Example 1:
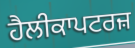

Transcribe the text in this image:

ਹੈਲੀਕਾਪਟਰਜ਼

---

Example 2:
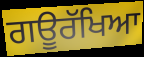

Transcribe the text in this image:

ਗਊਰੱਖਿਆ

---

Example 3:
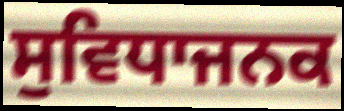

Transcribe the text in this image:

ਸੁਵਿਧਾਜਨਕ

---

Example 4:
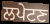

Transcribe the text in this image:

ਲਪੇਟਣ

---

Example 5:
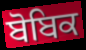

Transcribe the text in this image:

ਬੋਬਿਕ